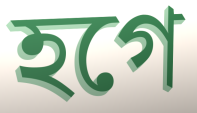
হগে